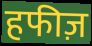
हफीज़